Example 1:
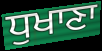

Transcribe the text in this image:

ਧੁਖਾਣਾ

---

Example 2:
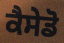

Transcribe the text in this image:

ਕੈਸੇਡੋ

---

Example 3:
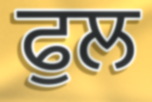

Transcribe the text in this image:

ਫੁਲ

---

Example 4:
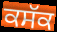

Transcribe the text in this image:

ਕਸੱਕ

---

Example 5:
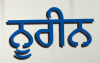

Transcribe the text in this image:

ਨੂਰੀਨ